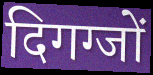
दिगग्जों